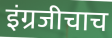
इंग्रजीचाच